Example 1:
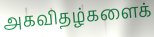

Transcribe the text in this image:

அகவிதழ்களைக்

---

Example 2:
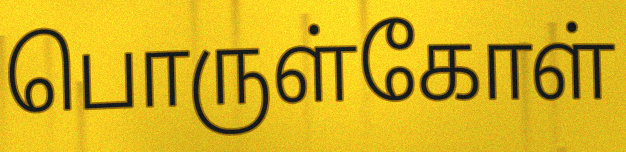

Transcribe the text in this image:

பொருள்கோள்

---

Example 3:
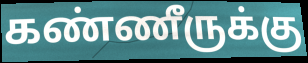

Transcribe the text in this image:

கண்ணீருக்கு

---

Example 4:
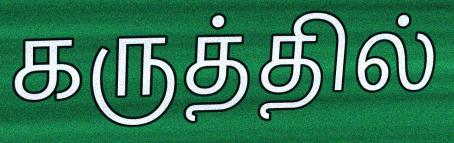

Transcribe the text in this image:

கருத்தில்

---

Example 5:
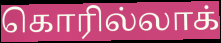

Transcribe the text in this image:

கொரில்லாக்